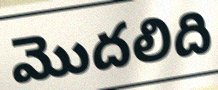
మొదలిది